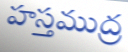
హస్తముద్ర